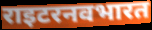
राइटरनवभारत